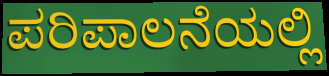
ಪರಿಪಾಲನೆಯಲ್ಲಿ